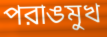
পরাঙমুখ